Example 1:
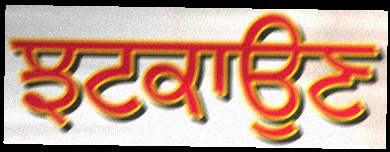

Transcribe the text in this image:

ਝਟਕਾਉਣ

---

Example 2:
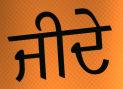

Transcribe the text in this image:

ਜੀਦੇ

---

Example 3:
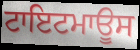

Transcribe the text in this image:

ਟਾਇਟਮਾਊਸ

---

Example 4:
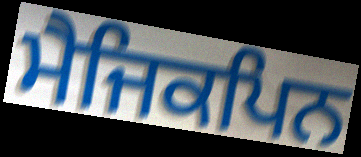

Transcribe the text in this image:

ਮੈਜਿਕਪਿਨ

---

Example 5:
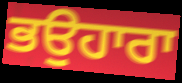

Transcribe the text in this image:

ਭਉਹਾਰਾ